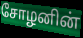
சோழனின்